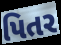
પિતર